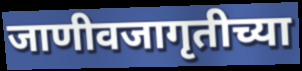
जाणीवजागृतीच्या